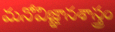
మనోవిజ్ఞానశాస్త్రం